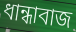
ধান্ধাবাজ